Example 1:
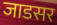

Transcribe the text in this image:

जाडसर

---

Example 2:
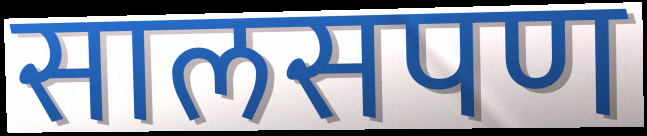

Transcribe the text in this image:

सालसपण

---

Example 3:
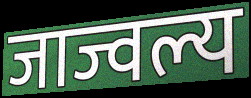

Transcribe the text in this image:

जाज्वल्य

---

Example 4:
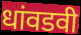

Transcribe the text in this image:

धांवडवी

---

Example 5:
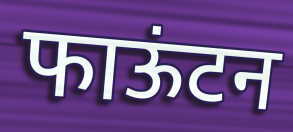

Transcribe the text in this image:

फाऊंटन